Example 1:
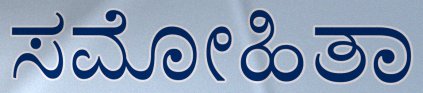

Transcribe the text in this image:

ಸಮೋಹಿತಾ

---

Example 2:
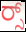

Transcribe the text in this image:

ರ್‍ಸ್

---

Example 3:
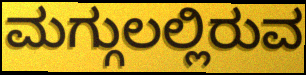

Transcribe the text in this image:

ಮಗ್ಗುಲಲ್ಲಿರುವ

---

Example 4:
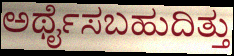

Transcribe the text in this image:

ಅರ್ಥೈಸಬಹುದಿತ್ತು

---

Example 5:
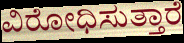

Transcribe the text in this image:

ವಿರೋಧಿಸುತ್ತಾರೆ